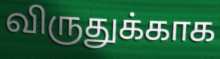
விருதுக்காக